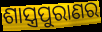
ଶାସ୍ତ୍ରପୁରାଣର